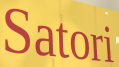
Satori